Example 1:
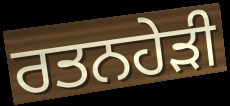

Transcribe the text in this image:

ਰਤਨਹੇੜੀ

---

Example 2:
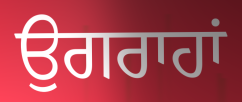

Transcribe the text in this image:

ਉਗਰਾਹਾਂ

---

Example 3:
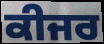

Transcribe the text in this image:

ਕੀਜਰ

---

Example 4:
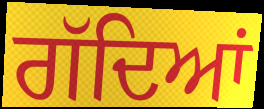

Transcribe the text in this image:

ਗੱਦਿਆਂ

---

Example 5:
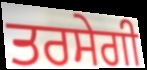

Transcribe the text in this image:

ਤਰਸੇਗੀ